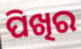
ପିଖିର